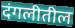
दंगलीतील